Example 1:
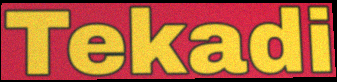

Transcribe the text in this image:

Tekadi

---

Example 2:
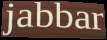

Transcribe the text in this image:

jabbar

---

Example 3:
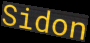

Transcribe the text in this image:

Sidon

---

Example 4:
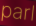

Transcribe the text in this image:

parl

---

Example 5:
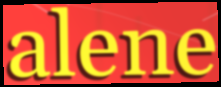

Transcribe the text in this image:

alene